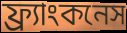
ফ্র্যাংকনেস